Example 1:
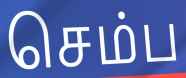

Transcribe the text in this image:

செம்ப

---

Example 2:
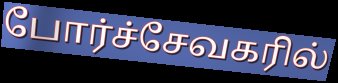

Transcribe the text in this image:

போர்ச்சேவகரில்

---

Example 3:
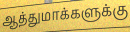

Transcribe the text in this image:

ஆத்துமாக்களுக்கு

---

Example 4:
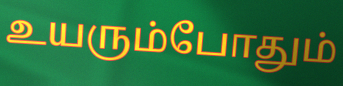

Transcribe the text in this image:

உயரும்போதும்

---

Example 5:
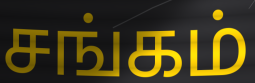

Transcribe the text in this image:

சங்கம்